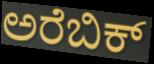
ಅರೆಬಿಕ್